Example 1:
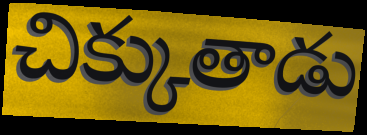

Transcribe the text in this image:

చిక్కుతాడు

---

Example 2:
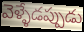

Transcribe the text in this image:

వెళ్ళేడప్పుడు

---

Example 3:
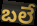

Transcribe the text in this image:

బలే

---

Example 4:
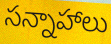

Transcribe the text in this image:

సన్నాహాలు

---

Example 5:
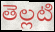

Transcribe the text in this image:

తెల్లటి